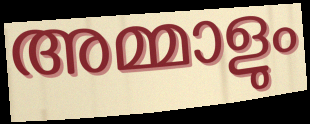
അമ്മാളും